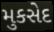
મુકસેદ